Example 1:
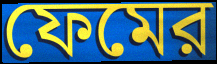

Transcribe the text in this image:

ফেমের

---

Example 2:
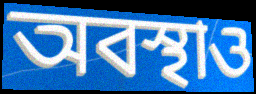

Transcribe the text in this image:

অবস্থাও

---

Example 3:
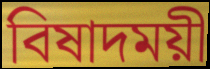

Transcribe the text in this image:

বিষাদময়ী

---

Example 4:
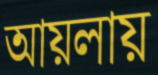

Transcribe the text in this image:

আয়লায়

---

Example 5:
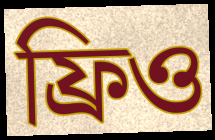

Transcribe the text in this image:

ফ্রিও